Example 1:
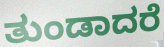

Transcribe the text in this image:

ತುಂಡಾದರೆ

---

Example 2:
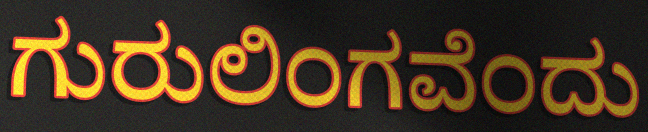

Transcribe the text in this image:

ಗುರುಲಿಂಗವೆಂದು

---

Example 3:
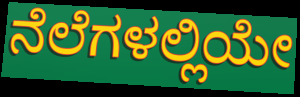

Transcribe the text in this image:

ನೆಲೆಗಳಲ್ಲಿಯೇ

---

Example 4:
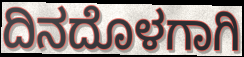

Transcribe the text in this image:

ದಿನದೊಳಗಾಗಿ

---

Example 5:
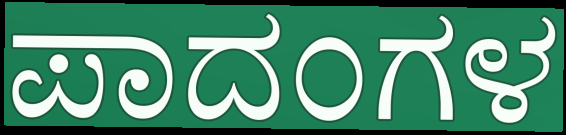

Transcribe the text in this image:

ಪಾದಂಗಳ